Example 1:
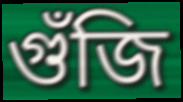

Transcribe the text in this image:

গুঁজি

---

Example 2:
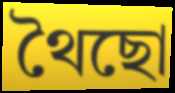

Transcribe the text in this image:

থৈছো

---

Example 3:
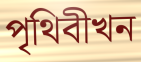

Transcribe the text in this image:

পৃথিবীখন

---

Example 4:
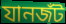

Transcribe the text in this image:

যানজঁট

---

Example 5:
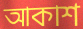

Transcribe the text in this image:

আকাশ